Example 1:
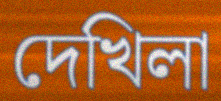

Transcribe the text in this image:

দেখিলা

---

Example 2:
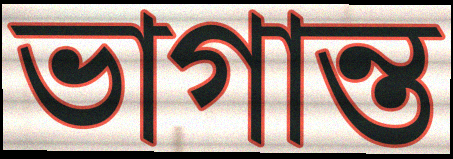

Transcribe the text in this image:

ভাগান্ত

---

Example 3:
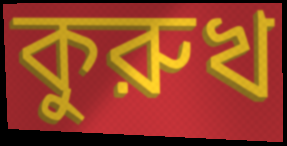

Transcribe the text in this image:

কুৰুখ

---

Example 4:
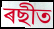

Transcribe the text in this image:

ৰছীত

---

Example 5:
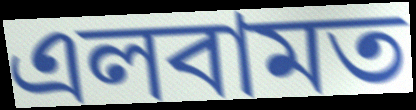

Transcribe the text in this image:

এলবামত